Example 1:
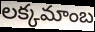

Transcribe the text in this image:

లక్కమాంబ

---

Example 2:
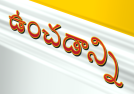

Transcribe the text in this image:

ఉంచడాన్ని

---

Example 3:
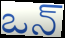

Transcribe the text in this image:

ఒన్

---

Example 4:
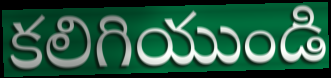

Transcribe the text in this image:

కలిగియుండి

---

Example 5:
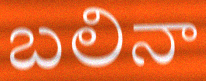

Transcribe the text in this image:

బలినా